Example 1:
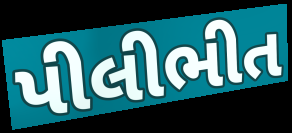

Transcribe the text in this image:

પીલીભીત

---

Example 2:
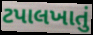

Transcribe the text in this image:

ટપાલખાતું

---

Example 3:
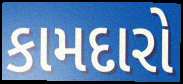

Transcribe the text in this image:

કામદારો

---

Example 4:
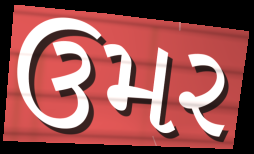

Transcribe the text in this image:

ઉમર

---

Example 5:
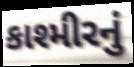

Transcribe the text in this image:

કાશ્મીરનું